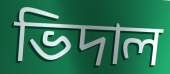
ভিদাল